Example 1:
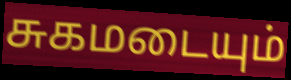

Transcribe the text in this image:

சுகமடையும்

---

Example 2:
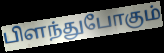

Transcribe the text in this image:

பிளந்துபோகும்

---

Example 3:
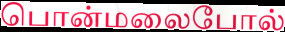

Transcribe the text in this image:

பொன்மலைபோல்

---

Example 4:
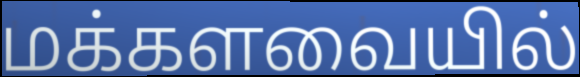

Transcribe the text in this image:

மக்களவையில்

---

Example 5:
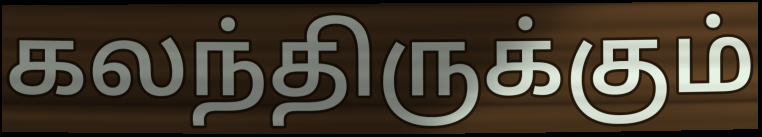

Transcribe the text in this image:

கலந்திருக்கும்